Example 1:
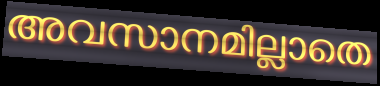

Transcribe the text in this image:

അവസാനമില്ലാതെ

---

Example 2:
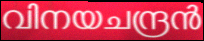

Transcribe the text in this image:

വിനയചന്ദ്രൻ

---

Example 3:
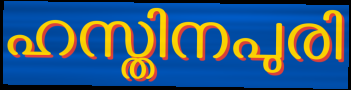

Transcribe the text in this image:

ഹസ്തിനപുരി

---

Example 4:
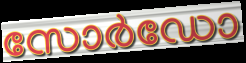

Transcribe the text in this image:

സോർഡോ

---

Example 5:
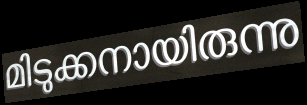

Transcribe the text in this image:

മിടുക്കനായിരുന്നു